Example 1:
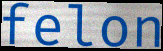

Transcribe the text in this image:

felon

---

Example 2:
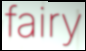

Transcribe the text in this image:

fairy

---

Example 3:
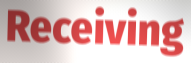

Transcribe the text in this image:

Receiving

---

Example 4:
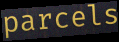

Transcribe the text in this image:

parcels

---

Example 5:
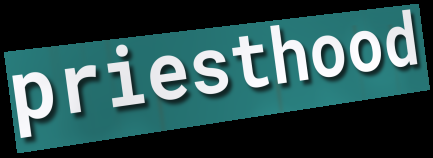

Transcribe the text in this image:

priesthood